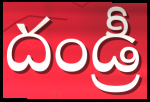
దండ్రీ